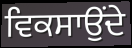
ਵਿਕਸਾਉਂਦੇ